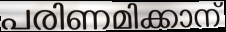
പരിണമിക്കാന്